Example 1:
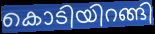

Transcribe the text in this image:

കൊടിയിറങ്ങി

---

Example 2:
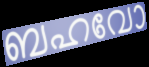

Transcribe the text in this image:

ബഹവോ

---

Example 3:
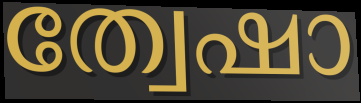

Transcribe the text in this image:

ത്വേഷാ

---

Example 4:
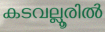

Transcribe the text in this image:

കടവല്ലൂരിൽ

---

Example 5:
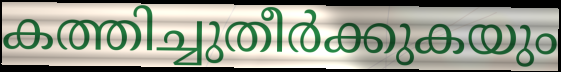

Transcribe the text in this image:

കത്തിച്ചുതീർക്കുകയും